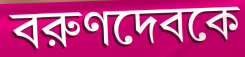
বরুণদেবকে